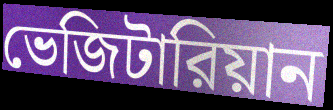
ভেজিটারিয়ান